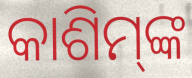
କାଶିମ୍‍ଙ୍କ